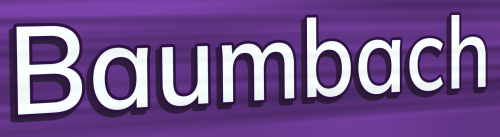
Baumbach